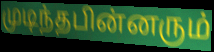
முடிந்தபின்னரும்